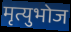
मृत्युभोज